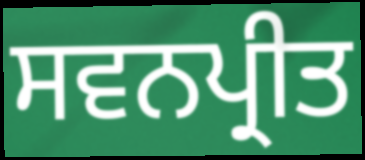
ਸਵਨਪ੍ਰੀਤ